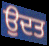
ਉਦਤ